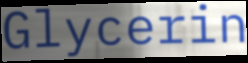
Glycerin